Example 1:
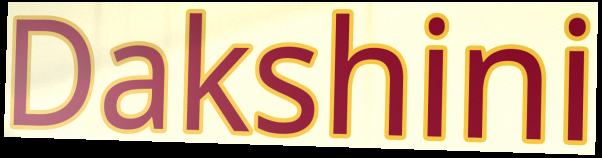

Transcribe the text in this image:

Dakshini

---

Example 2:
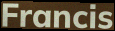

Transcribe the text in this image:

Francis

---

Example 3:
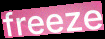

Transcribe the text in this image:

freeze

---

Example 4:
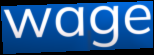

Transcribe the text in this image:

wage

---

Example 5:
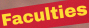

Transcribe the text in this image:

Faculties